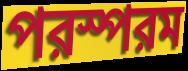
পরস্পরম